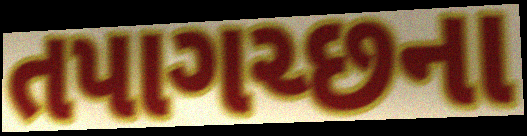
તપાગચ્છના